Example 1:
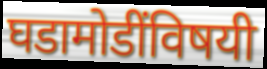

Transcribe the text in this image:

घडामोडींविषयी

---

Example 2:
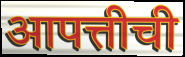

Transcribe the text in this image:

आपत्तीची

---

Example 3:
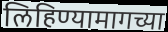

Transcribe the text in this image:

लिहिण्यामागच्या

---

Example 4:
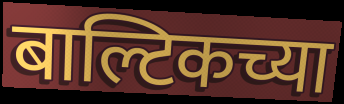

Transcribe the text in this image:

बाल्टिकच्या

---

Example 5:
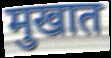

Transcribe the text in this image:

मुखात